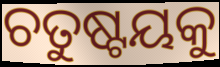
ଚତୁଷ୍ଟୟକୁ